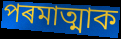
পৰমাত্মাক